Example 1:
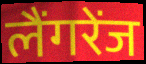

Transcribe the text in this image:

लैंगरेंज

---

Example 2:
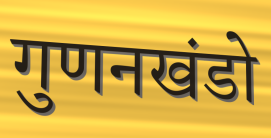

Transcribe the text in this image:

गुणनखंडो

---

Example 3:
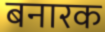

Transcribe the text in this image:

बनारक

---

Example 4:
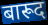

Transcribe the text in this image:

बारूद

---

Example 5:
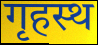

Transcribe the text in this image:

गृहस्‍थ